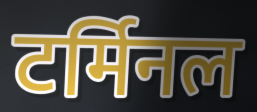
टर्मिनल